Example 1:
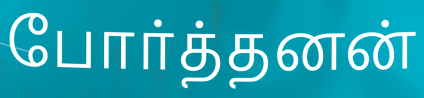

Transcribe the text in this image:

போர்த்தனன்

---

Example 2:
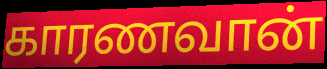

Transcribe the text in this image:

காரணவான்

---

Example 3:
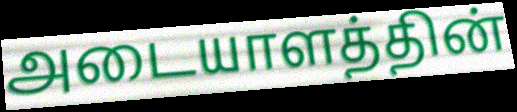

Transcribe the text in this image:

அடையாளத்தின்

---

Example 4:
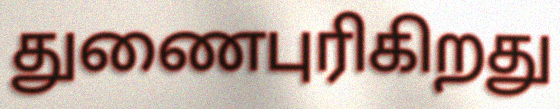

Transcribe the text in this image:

துணைபுரிகிறது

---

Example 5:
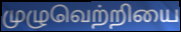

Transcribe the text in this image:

முழுவெற்றியை